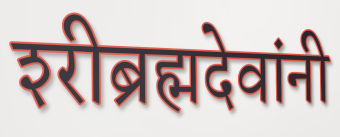
श्रीब्रह्मदेवांनी